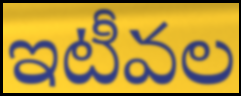
ఇటీవల